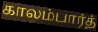
காலம்பார்த்